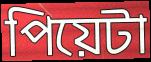
পিয়েটা